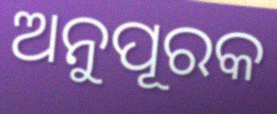
ଅନୁପୂରକ